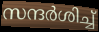
സന്ദർശിച്ച്